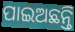
ପାଇଅଛନ୍ତି